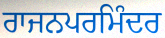
ਰਾਜਨਪਰਮਿੰਦਰ